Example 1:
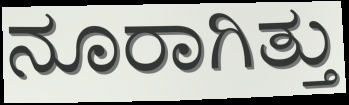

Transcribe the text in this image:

ನೂರಾಗಿತ್ತು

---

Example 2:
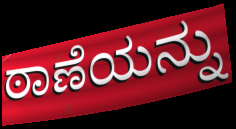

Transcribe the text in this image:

ಠಾಣೆಯನ್ನು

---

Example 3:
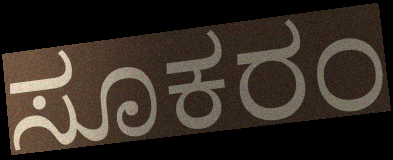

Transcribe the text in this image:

ಸೂಕರಂ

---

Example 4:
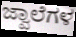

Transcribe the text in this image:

ಜ್ವಾಲೆಗಳ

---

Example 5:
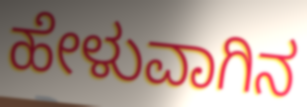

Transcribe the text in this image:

ಹೇಳುವಾಗಿನ